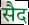
सैद